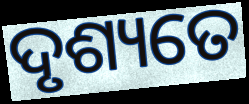
ଦୃଶ୍ୟତେ